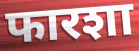
फारशा